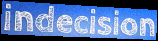
indecision